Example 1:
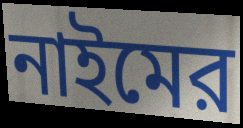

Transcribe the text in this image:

নাইমের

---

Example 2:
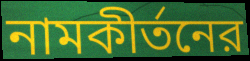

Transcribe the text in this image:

নামকীর্তনের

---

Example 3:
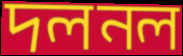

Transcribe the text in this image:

দলনল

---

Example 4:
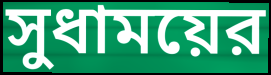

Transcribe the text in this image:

সুধাময়ের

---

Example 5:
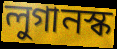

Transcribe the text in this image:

লুগানস্ক